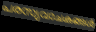
പരസ്യവാചകങ്ങൾ